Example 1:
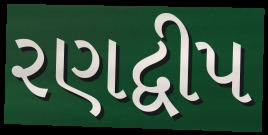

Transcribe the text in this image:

રણદ્વીપ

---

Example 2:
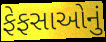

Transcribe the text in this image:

ફેફસાઓનું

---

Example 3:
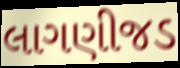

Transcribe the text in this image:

લાગણીજડ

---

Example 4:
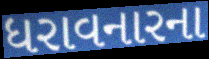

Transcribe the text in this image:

ધરાવનારના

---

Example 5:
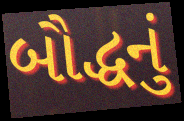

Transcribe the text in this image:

બૌદ્ધનું